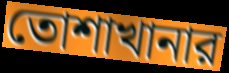
তোশাখানার